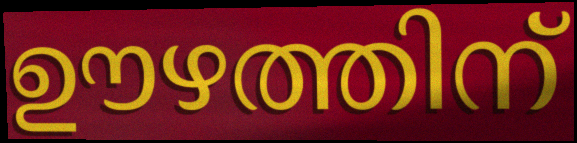
ഊഴത്തിന്